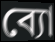
ব্যো